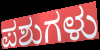
ಪಶುಗಳು